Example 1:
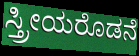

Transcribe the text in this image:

ಸ್ತ್ರೀಯರೊಡನೆ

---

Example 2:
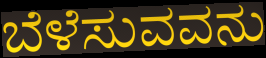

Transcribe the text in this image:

ಬೆಳೆಸುವವನು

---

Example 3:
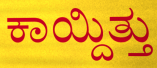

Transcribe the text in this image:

ಕಾಯ್ದಿತ್ತು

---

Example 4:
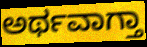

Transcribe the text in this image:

ಅರ್ಥವಾಗ್ತಾ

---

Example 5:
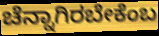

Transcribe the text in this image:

ಚೆನ್ನಾಗಿರಬೇಕೆಂಬ